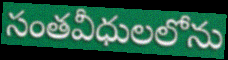
సంతవీధులలోను